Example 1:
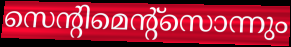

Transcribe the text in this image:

സെന്റിമെന്റ്സൊന്നും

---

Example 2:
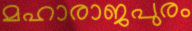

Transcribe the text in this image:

മഹാരാജപുരം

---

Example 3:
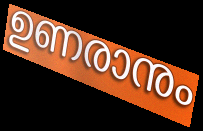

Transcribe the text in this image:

ഉണരാനും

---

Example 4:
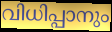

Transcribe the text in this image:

വിധിപ്പാനും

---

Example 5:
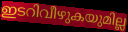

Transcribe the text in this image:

ഇടറിവീഴുകയുമില്ല